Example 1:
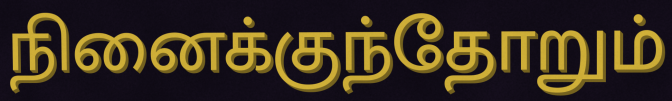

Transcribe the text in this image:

நினைக்குந்தோறும்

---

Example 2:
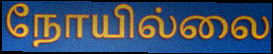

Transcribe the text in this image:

நோயில்லை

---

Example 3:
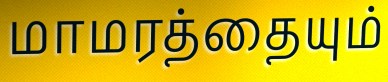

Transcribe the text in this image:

மாமரத்தையும்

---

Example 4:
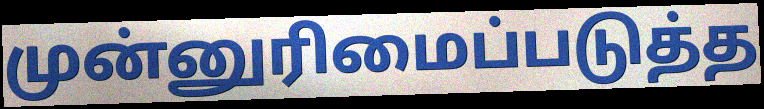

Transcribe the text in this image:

முன்னுரிமைப்படுத்த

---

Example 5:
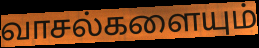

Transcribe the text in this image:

வாசல்களையும்